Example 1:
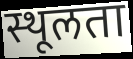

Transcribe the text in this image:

स्थूलता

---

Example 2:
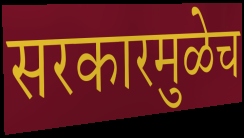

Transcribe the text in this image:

सरकारमुळेच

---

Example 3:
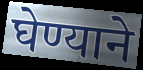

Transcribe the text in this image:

घेण्याने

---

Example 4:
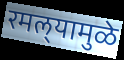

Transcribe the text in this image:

रमल्यामुळे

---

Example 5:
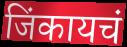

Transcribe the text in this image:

जिंकायचं